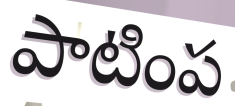
పాటింప